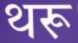
थरू